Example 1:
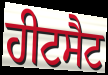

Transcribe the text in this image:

ਹੀਟਸੈਟ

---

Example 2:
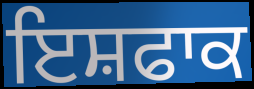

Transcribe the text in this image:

ਇਸ਼ਫਾਕ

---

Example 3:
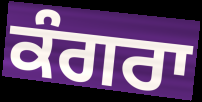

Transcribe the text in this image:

ਕੰਗਰਾ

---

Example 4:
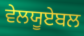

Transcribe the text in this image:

ਵੇਲਯੂਏਬਲ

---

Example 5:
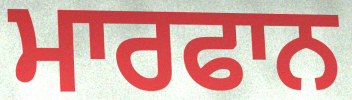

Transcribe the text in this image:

ਮਾਰਫਾਨ